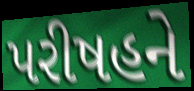
પરીષહને